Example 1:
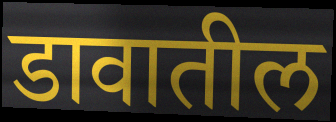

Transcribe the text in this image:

डावातील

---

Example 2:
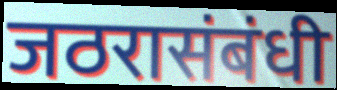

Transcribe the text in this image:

जठरासंबंधी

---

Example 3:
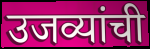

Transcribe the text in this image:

उजव्यांची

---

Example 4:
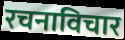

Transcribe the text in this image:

रचनाविचार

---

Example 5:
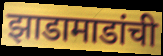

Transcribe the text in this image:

झाडामाडांची